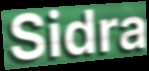
Sidra